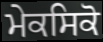
ਮੇਕਸਿਕੋ